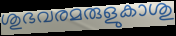
ശുഭവരമരുളുകാശു